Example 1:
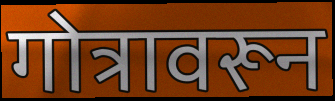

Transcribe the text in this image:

गोत्रावरून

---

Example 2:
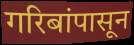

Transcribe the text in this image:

गरिबांपासून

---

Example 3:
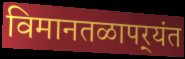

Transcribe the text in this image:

विमानतळापर्यंत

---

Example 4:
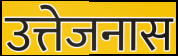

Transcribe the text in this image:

उत्तेजनास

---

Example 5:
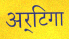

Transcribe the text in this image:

अर्टिगा